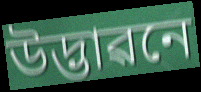
উদ্ভাৱনে